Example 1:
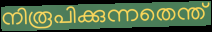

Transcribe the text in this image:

നിരൂപിക്കുന്നതെന്ത്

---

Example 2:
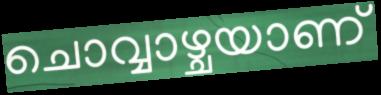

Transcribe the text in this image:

ചൊവ്വാഴ്ചയാണ്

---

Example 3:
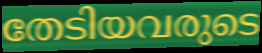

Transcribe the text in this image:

തേടിയവരുടെ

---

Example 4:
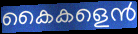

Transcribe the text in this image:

കൈകളെൻ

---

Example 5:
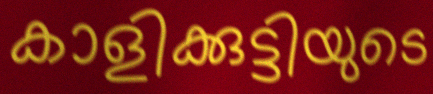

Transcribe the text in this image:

കാളിക്കുട്ടിയുടെ